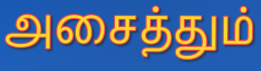
அசைத்தும்